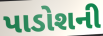
પાડોશની